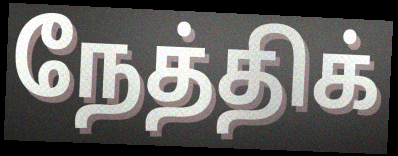
நேத்திக்